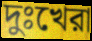
দুঃখেরা